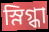
স্নিগ্ধা